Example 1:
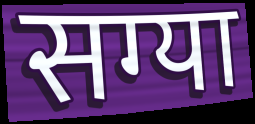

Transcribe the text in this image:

सग्या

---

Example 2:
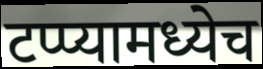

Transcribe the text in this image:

टप्प्यामध्येच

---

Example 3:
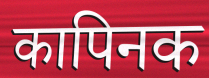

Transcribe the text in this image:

कापिनक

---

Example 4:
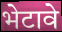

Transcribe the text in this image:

भेटावे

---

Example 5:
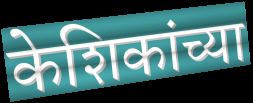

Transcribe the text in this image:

केशिकांच्या